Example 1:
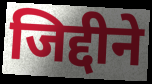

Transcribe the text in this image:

जिद्दीने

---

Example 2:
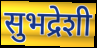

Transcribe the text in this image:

सुभद्रेशी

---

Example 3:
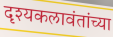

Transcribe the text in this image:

दृश्यकलावंतांच्या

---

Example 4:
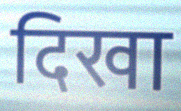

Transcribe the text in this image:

दिखा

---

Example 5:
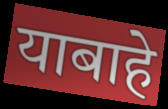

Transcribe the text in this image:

याबाहे